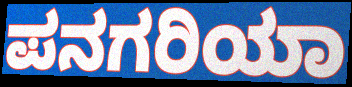
ಪನಗರಿಯಾ